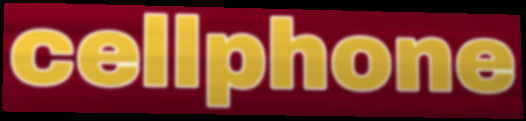
cellphone